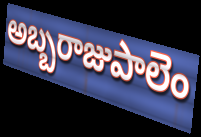
అబ్బరాజుపాలెం